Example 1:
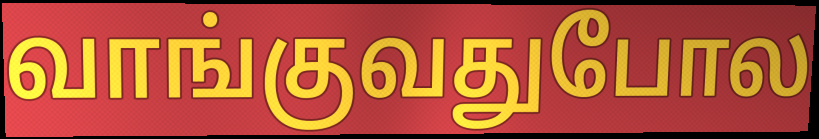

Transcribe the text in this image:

வாங்குவதுபோல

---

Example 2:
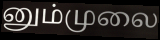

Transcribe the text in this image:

னும்முலை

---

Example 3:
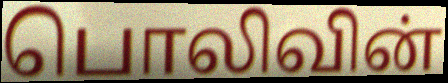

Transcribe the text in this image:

பொலிவின்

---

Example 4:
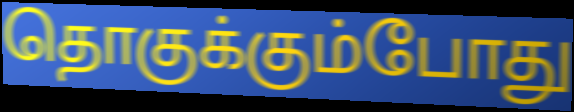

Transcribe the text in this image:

தொகுக்கும்போது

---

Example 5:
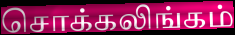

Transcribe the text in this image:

சொக்கலிங்கம்